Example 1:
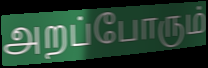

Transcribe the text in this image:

அறப்போரும்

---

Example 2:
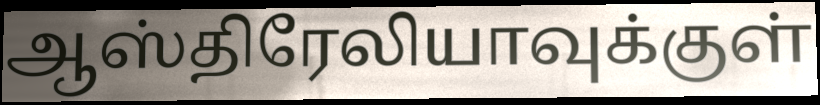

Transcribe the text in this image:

ஆஸ்திரேலியாவுக்குள்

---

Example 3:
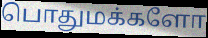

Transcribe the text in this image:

பொதுமக்களோ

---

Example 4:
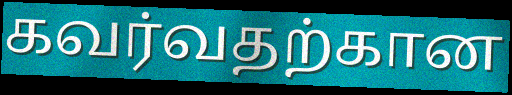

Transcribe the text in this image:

கவர்வதற்கான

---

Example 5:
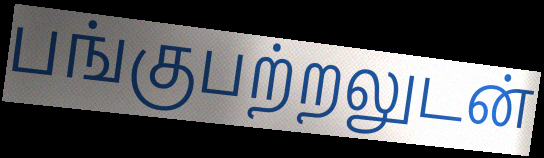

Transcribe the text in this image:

பங்குபற்றலுடன்